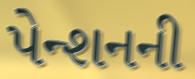
પેન્શનની